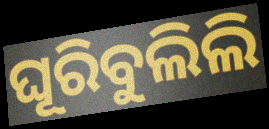
ଘୂରିବୁଲିଲି